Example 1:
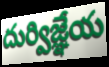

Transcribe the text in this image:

దుర్విజ్ఞేయ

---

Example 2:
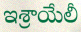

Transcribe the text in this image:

ఇశ్రాయేలీ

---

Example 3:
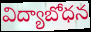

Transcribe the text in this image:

విద్యాబోధన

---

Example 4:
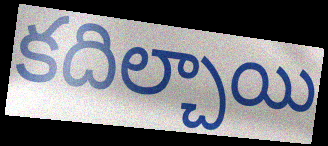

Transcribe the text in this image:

కదిల్చాయి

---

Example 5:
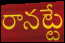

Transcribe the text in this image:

రానట్టే